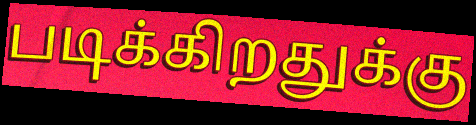
படிக்கிறதுக்கு